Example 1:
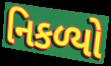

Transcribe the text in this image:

નિકળ્યો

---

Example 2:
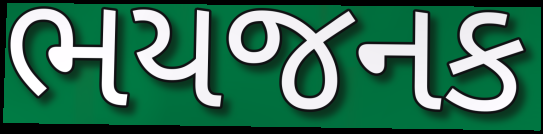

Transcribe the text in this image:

ભયજનક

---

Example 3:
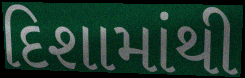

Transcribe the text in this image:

દિશામાંથી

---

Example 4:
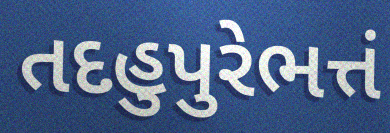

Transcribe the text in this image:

તદહુપુરેભત્તં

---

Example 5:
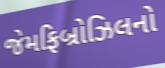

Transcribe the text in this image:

જેમફિબ્રોઝિલનો